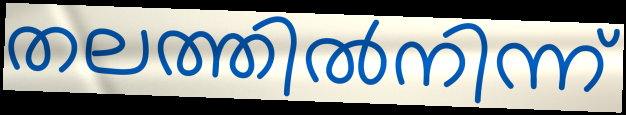
തലത്തിൽനിന്ന്